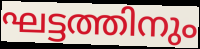
ഘട്ടത്തിനും